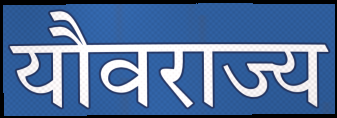
यौवराज्य